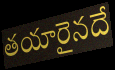
తయారైనదే